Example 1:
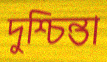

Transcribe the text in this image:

দুশ্চিন্তা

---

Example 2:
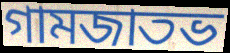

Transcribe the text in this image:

গামজাতভ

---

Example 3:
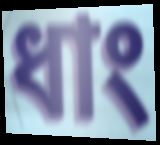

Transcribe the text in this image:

ধাং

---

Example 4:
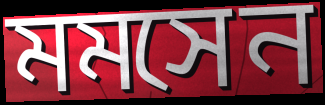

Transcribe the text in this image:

মমসেন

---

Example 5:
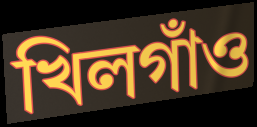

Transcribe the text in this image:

খিলগাঁও